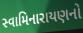
સ્વામિનારાયણનો